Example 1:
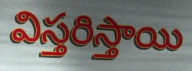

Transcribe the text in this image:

విస్తరిస్తాయి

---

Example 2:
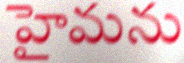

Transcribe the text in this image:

హైమను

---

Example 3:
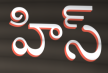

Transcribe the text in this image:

హిస్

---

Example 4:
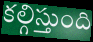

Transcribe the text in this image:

కల్గిస్తుంది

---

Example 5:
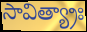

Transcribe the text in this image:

సావిత్య్రాః